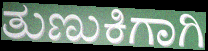
ತುಣುಕಿಗಾಗಿ